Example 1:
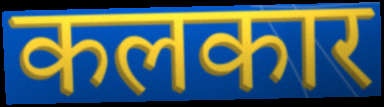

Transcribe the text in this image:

कलकार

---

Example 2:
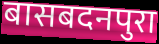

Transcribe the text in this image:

बासबदनपुरा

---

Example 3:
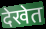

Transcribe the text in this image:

देखेत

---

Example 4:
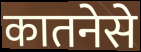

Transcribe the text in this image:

कातनेसे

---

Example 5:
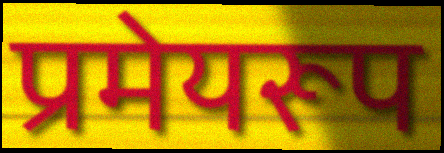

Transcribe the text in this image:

प्रमेयरूप